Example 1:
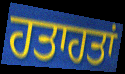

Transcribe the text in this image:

ਹਤਾਹਤਾਂ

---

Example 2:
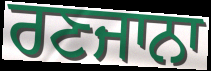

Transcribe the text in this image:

ਰਣਜਾਨਾ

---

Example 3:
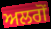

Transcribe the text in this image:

ਅਲਗੋਂ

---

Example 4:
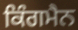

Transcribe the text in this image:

ਕਿੰਗਮੈਨ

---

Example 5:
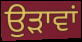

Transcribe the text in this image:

ਉੜਾਵਾਂ